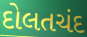
દોલતચંદ